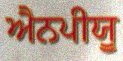
ਐਨਪੀਯੂ